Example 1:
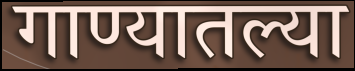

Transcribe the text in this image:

गाण्यातल्या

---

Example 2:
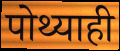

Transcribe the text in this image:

पोथ्याही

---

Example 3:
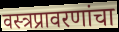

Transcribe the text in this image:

वस्त्रप्रावरणांचा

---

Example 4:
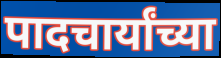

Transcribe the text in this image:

पादचार्यांच्या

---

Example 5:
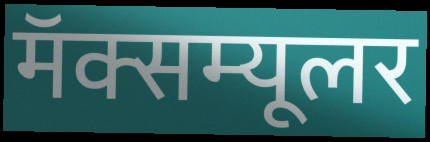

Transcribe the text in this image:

मॅक्सम्यूलर